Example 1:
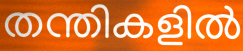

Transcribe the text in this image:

തന്തികളിൽ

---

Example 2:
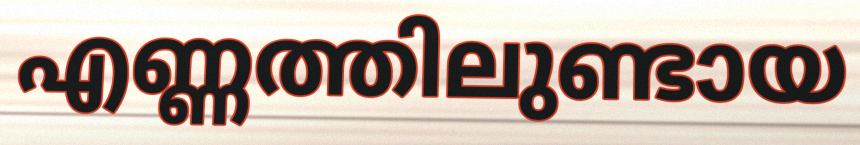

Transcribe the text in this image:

എണ്ണത്തിലുണ്ടായ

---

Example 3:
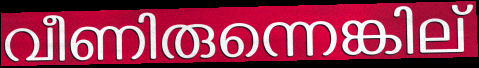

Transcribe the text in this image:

വീണിരുന്നെങ്കില്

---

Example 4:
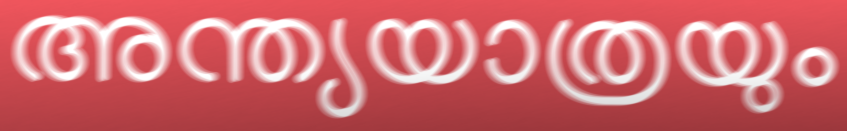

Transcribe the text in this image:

അന്ത്യയാത്രയും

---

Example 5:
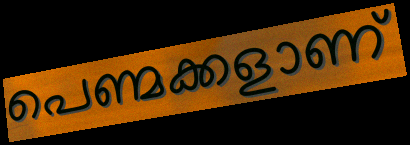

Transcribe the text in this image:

പെണ്മക്കളാണ്